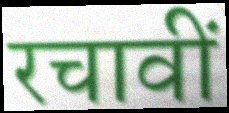
रचावीं